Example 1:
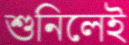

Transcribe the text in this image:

শুনিলেই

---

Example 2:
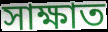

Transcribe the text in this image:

সাক্ষাত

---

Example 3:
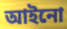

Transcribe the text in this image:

আইনো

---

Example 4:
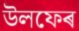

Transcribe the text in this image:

উলফেৰ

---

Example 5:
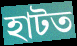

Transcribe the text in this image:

হাটত